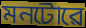
মনটোৱে